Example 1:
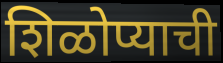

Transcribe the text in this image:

शिळोप्याची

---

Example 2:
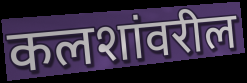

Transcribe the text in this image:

कलशांवरील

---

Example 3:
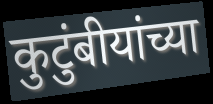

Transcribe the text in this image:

कुटुंबीयांच्या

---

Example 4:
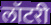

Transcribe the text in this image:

लॉटरी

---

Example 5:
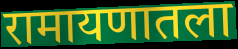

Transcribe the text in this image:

रामायणातला